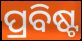
ପ୍ରବିଷ୍ଟ